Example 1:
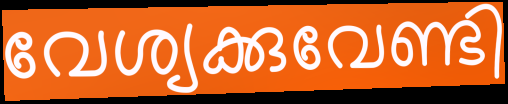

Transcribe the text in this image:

വേശ്യക്കുവേണ്ടി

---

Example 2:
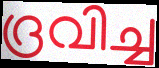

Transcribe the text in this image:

ദ്രവിച്ച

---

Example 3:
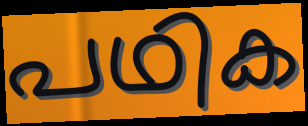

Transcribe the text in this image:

പഥിക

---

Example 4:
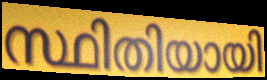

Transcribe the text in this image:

സ്ഥിതിയായി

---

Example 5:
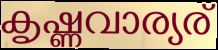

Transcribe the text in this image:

കൃഷ്ണവാര്യര്